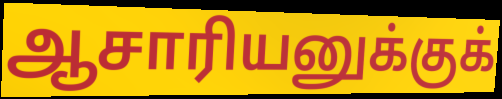
ஆசாரியனுக்குக்